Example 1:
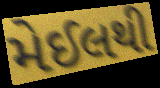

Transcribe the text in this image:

મેઈલથી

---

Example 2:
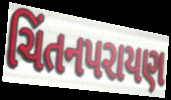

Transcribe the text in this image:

ચિંતનપરાયણ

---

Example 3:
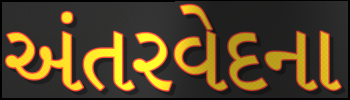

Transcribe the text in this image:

અંતરવેદના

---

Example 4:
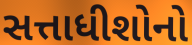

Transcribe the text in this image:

સત્તાધીશોનો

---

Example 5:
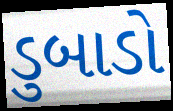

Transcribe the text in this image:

ડુબાડો